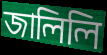
জালিলি